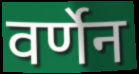
वर्णेन